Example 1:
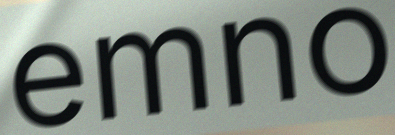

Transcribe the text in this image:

emno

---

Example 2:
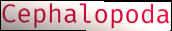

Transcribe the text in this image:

Cephalopoda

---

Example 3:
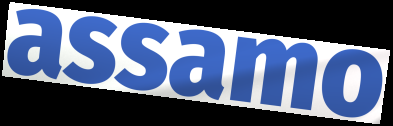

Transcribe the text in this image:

assamo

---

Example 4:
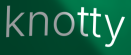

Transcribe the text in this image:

knotty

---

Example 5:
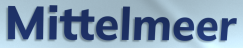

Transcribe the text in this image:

Mittelmeer